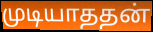
முடியாததன்